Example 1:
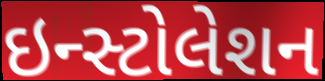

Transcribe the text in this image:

ઇન્સ્ટોલેશન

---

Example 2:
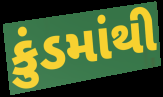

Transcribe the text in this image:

કુંડમાંથી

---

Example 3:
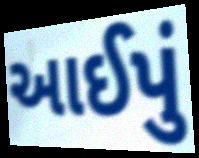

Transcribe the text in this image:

આઈપું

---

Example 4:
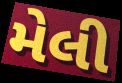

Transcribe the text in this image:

મેલી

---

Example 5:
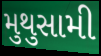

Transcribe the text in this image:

મુથુસામી